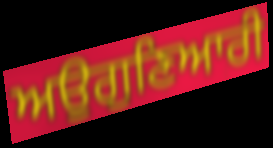
ਅਉਗੁਣਿਆਰੀ